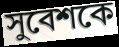
সুবেশকে